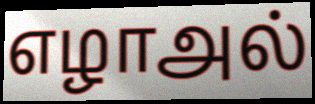
எழாஅல்